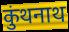
कुंथनाथ